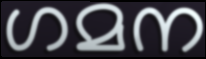
ഗമന